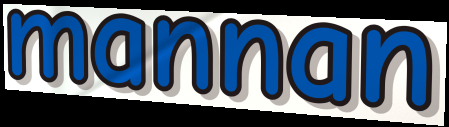
mannan